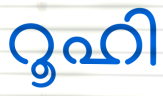
റൂഹി